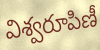
విశ్వరూపిణీ